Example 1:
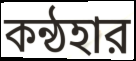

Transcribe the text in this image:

কন্ঠহার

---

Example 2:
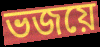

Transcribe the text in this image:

ভজয়ে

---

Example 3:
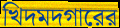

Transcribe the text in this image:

খিদমদগারের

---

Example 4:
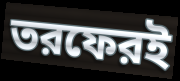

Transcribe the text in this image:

তরফেরই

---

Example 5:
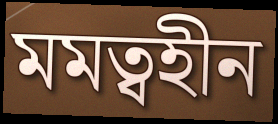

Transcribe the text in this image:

মমত্বহীন